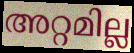
അറ്റമില്ല